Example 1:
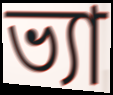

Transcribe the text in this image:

ভ্যা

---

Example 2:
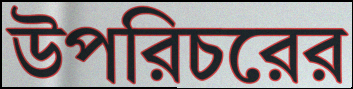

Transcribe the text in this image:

উপরিচরের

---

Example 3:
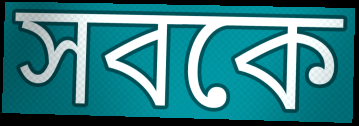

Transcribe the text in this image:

সবকে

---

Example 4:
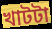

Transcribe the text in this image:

খাটটা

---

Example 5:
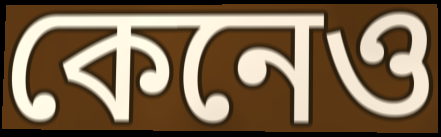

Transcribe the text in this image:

কেনেও